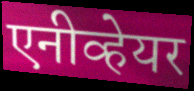
एनीव्हेयर